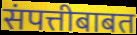
संपत्तीबाबत